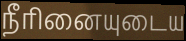
நீரினையுடைய